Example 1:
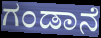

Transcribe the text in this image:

ಗಂಡಾನೆ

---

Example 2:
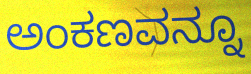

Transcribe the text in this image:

ಅಂಕಣವನ್ನೂ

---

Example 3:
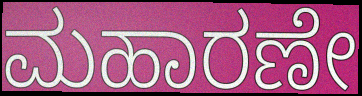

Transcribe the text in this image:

ಮಹಾರಣೇ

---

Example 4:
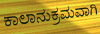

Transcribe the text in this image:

ಕಾಲಾನುಕ್ರಮವಾಗಿ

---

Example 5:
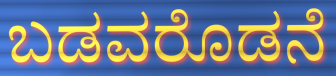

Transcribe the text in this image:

ಬಡವರೊಡನೆ